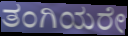
ತಂಗಿಯರೇ